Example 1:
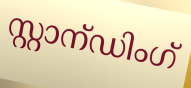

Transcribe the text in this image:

സ്റ്റാന്ഡിംഗ്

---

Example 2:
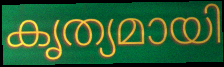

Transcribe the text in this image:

കൃത്യമായി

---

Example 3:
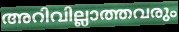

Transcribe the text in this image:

അറിവില്ലാത്തവരും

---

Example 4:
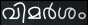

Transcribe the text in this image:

വിമർശം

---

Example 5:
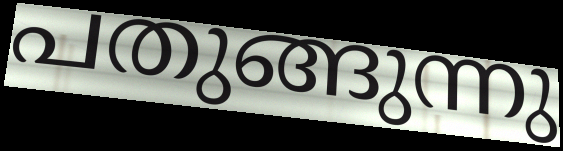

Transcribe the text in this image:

പതുങ്ങുന്നു